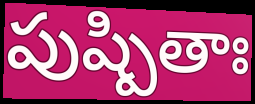
పుష్పితాః